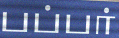
பப்பர்